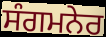
ਸੰਗਮਨੇਰ